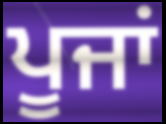
ਪੂਜਾਂ